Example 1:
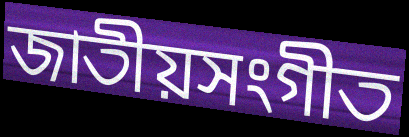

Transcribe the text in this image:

জাতীয়সংগীত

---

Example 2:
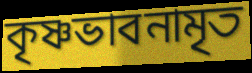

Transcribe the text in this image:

কৃষ্ণভাবনামৃত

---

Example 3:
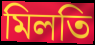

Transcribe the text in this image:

মিলতি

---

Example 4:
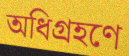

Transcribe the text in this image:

অধিগ্রহণে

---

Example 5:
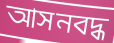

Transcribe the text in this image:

আসনবদ্ধ